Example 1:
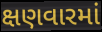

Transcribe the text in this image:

ક્ષણવારમાં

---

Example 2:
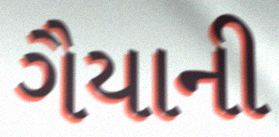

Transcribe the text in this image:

ગૈયાની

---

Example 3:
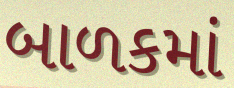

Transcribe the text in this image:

બાળકમાં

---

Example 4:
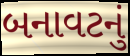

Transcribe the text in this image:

બનાવટનું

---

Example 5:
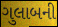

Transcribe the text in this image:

ગુલાબની